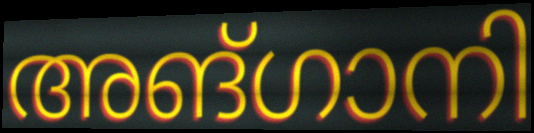
അങ്ഗാനി